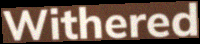
Withered